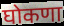
घोकणा